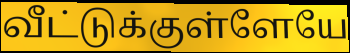
வீட்டுக்குள்ளேயே